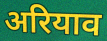
अरियाव